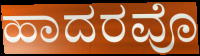
ಹಾದರವೊ